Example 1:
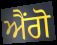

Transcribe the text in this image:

ਐਂਗੋ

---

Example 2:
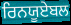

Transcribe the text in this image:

ਰਿਨਯੂਏਬਲ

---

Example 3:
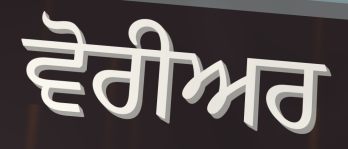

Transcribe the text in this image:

ਵੋਰੀਅਰ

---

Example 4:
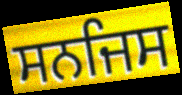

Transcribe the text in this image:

ਸਨਜਿਸ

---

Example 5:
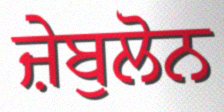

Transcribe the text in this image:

ਜ਼ੇਬੁਲੋਨ